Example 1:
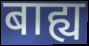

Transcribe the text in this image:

बाह्य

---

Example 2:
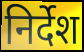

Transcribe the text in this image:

निर्देश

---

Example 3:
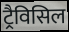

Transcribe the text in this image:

ट्रैविसिल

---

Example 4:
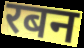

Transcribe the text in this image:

रबन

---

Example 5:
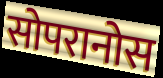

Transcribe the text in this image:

सोपरानोस